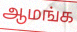
ஆமங்க